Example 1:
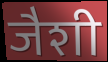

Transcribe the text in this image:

जैशी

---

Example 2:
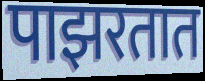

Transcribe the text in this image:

पाझरतात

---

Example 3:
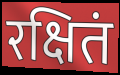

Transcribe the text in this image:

रक्षितं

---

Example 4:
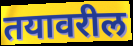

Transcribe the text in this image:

तयावरील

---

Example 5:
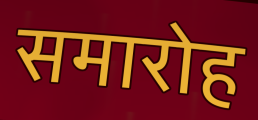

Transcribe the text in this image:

समारोह